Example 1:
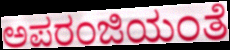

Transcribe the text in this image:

ಅಪರಂಜಿಯಂತೆ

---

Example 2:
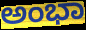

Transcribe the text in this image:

ಅಂಭಾ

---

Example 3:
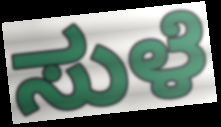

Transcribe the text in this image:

ಸುಳೆ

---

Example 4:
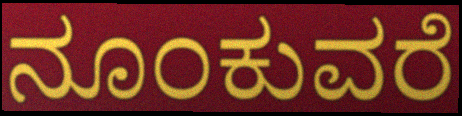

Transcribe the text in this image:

ನೂಂಕುವರೆ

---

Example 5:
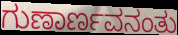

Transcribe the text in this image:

ಗುಣಾರ್ಣವನಂತು